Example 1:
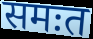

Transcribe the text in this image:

समःत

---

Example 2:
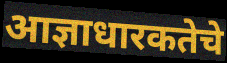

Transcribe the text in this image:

आज्ञाधारकतेचे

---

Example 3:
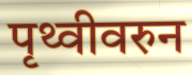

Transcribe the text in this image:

पृथ्वीवरुन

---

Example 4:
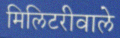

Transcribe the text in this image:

मिलिटरीवाले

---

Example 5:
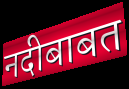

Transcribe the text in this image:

नदीबाबत